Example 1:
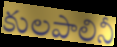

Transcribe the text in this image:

కులపాలినీ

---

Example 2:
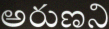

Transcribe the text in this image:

అరుణని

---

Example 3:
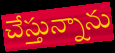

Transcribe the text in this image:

చేస్తున్నాను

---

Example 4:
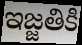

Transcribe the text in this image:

ఇజ్జతికి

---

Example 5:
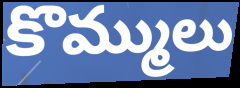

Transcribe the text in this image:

కొమ్ములు